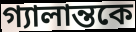
গ্যালান্তকে